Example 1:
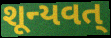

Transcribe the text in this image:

શૂન્યવત્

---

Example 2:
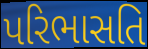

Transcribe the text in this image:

પરિભાસતિ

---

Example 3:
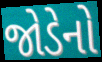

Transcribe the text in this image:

જોડેનો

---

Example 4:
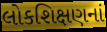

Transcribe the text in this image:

લોકશિક્ષણનાં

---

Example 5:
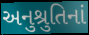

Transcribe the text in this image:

અનુશ્રુતિનાં